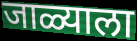
जाळ्याला